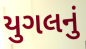
યુગલનું